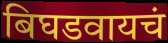
बिघडवायचं